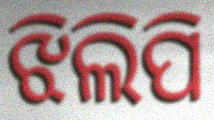
ଝିଲିପି